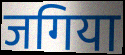
जगिया